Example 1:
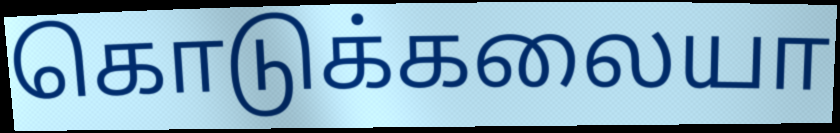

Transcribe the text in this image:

கொடுக்கலையா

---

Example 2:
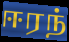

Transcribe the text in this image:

ஈரந்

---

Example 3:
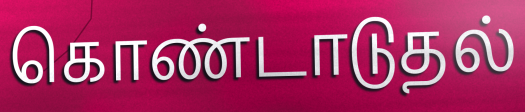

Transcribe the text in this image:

கொண்டாடுதல்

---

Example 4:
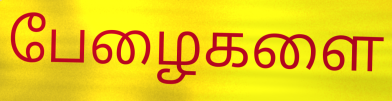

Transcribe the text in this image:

பேழைகளை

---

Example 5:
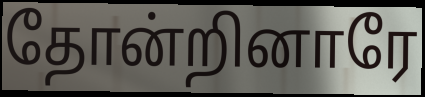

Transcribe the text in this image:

தோன்றினாரே